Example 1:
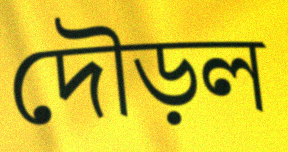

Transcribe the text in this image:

দৌড়ল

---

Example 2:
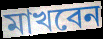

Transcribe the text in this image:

মাখবেন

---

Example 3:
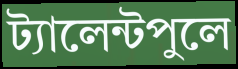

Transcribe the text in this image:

ট্যালেন্টপুলে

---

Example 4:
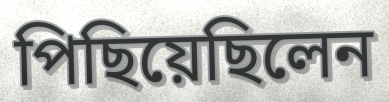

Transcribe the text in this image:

পিছিয়েছিলেন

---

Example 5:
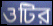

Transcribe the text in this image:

ওটির